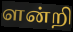
ளன்றி